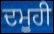
ਦਮੂਹੀ